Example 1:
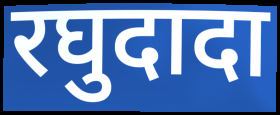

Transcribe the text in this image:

रघुदादा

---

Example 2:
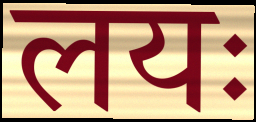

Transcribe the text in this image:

लयः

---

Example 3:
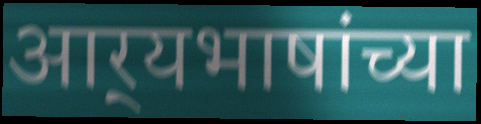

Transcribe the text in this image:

आर्यभाषांच्या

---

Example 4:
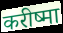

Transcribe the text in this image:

करीष्मा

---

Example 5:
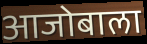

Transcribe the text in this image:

आजोबाला